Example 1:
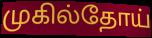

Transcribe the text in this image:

முகில்தோய்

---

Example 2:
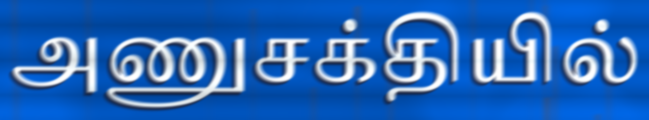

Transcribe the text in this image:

அணுசக்தியில்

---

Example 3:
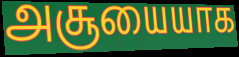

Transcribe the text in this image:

அசூயையாக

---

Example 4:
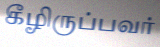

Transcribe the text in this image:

கீழிருப்பவர்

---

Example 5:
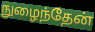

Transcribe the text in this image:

நுழைந்தேன்